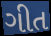
ગીત